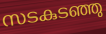
സടകുടഞ്ഞു